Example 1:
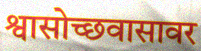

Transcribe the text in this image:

श्वासोच्छवासावर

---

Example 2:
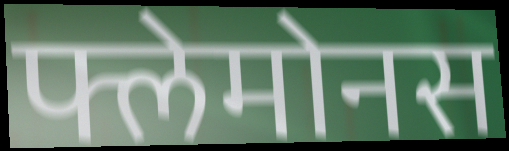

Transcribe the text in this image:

फ्लेमोनस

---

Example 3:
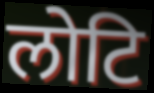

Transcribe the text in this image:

लोटि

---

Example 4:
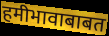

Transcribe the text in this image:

हमीभावाबाबत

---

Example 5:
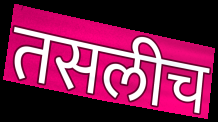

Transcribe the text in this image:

तसलीच